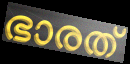
ഭാരത്